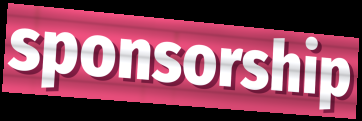
sponsorship